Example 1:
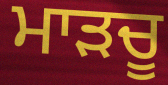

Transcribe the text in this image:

ਮਾੜਚੂ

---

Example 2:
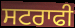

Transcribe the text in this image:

ਸਟਰਾਫੀ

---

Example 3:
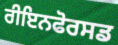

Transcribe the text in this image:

ਰੀਇਨਫੋਰਸਡ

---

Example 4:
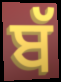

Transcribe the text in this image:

ਬੱ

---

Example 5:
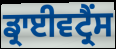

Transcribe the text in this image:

ਡ੍ਰਾਈਵਟ੍ਰੈਂਸ